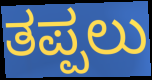
ತಪ್ಪಲು